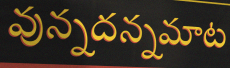
వున్నదన్నమాట